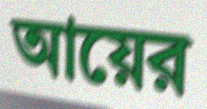
আয়ের